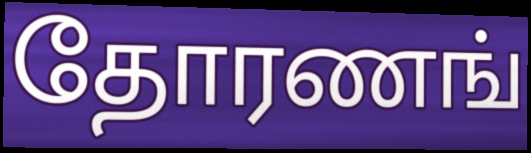
தோரணங்